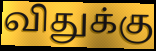
விதுக்கு